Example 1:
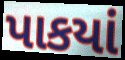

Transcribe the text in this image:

પાકયાં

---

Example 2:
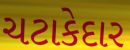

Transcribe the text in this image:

ચટાકેદાર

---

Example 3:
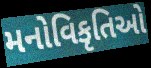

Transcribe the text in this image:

મનોવિકૃતિઓ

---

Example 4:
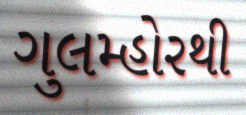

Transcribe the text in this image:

ગુલમ્હોરથી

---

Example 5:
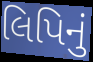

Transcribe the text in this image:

લિપિનું